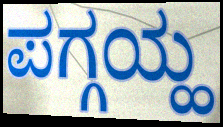
ಪಗ್ಗಯ್ಹ